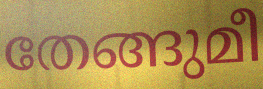
തേങ്ങുമീ